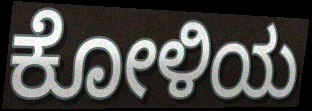
ಕೋಳಿಯ